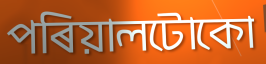
পৰিয়ালটোকো